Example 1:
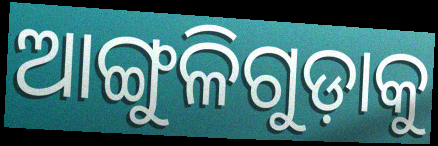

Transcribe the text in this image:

ଆଙ୍ଗୁଳିଗୁଡ଼ାକୁ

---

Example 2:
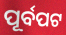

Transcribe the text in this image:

ପୂର୍ବପଟ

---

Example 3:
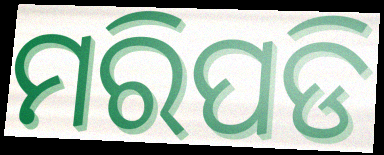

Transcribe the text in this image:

ମରିପଡି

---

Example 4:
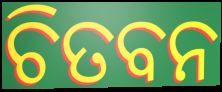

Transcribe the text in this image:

ଚିତବନ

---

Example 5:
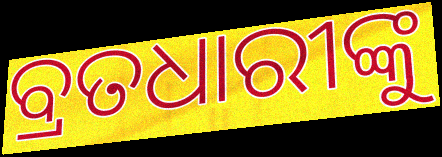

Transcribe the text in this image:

ବ୍ରତଧାରୀଙ୍କୁ